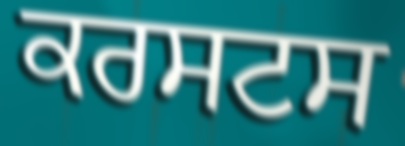
ਕਰਸਟਸ